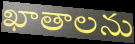
ఖాతాలను